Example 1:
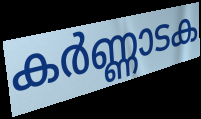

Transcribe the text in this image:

കർണ്ണാടക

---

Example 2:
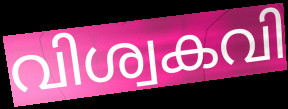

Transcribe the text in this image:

വിശ്വകവി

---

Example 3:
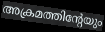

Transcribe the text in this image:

അക്രമത്തിന്റേയും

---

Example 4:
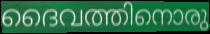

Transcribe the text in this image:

ദൈവത്തിനൊരു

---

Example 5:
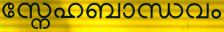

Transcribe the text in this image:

സ്നേഹബാന്ധവം